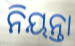
ନିୟନ୍ତା